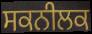
ਸਕਨੀਲਕ